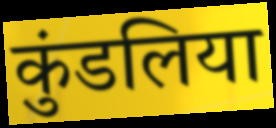
कुंडलिया